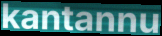
kantannu